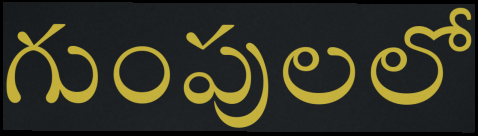
గుంపులలో